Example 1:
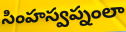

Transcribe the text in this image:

సింహస్వప్నంలా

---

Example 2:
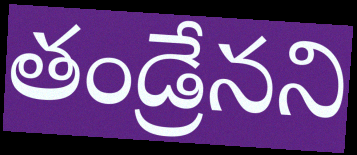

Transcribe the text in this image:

తండ్రేనని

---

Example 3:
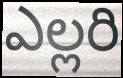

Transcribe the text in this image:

ఎల్లరి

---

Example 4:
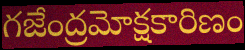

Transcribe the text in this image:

గజేంద్రమోక్షకారిణం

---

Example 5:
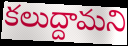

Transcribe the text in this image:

కలుద్దామని